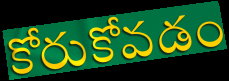
కోరుకోవడం